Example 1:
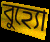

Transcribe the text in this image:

বুহ্যো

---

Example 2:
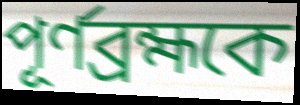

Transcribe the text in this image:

পূর্ণব্রহ্মকে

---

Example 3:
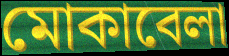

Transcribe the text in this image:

মোকাবেলা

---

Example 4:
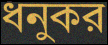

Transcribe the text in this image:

ধনুকর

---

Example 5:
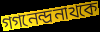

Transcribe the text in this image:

গগনেন্দ্রনাথকে